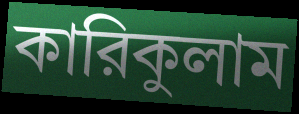
কারিকুলাম